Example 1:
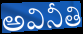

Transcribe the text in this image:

అవినీతి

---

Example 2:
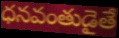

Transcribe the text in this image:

ధనవంతుడైతే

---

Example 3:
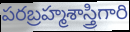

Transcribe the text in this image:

పరబ్రహ్మశాస్త్రిగారి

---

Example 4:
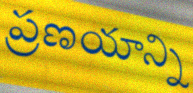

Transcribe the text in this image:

ప్రణయాన్ని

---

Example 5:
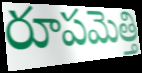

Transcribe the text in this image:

రూపమెత్తి